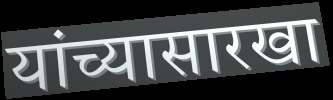
यांच्यासारखा